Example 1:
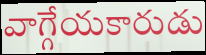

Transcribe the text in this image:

వాగ్గేయకారుడు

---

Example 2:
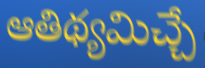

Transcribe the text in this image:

ఆతిథ్యమిచ్చే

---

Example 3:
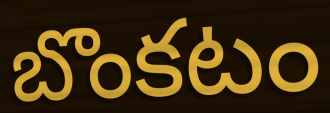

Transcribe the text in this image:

బొంకటం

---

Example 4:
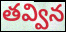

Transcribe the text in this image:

తవ్విన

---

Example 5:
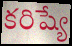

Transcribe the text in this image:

కరిష్యే